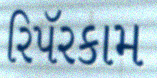
રિપૅરકામ